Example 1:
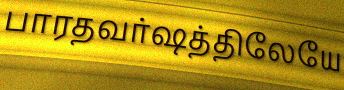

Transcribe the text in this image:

பாரதவர்ஷத்திலேயே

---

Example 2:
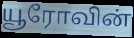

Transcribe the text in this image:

யூரோவின்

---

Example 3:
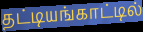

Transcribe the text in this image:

தட்டியங்காட்டில்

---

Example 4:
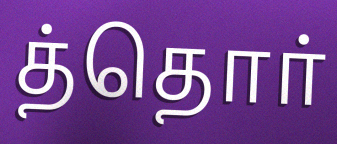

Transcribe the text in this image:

த்தொர்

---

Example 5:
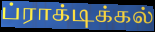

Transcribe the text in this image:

ப்ராக்டிக்கல்